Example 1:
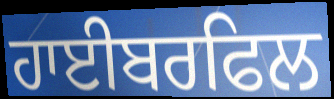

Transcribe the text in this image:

ਹਾਈਬਰਫਿਲ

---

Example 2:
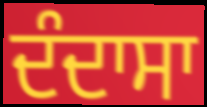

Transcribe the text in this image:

ਦੰਦਾਸਾ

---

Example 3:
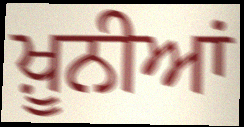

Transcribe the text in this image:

ਖ਼ੂਨੀਆਂ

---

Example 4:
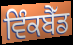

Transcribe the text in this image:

ਵਿੰਕਬੈੱਡ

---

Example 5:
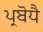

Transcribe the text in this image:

ਪ੍ਰਬੋਧੈ